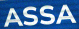
ASSA